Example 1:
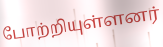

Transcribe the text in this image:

போற்றியுள்ளனர்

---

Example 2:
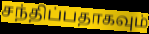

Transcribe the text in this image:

சந்திப்பதாகவும்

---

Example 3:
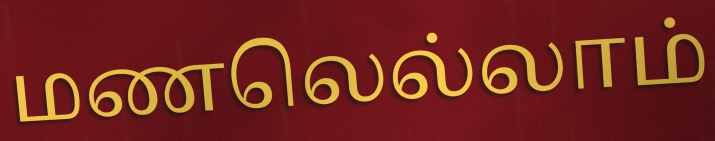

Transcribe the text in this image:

மணலெல்லாம்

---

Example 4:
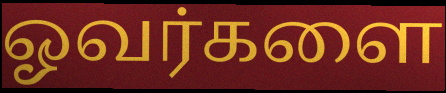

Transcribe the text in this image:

ஓவர்களை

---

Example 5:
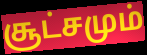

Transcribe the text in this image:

சூட்சமும்